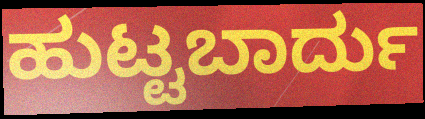
ಹುಟ್ಟಬಾರ್ದು